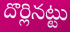
దొర్లినట్టు